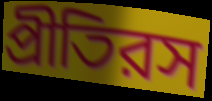
প্রীতিরস